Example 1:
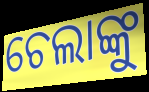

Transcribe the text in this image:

ଚେଲାଙ୍କୁ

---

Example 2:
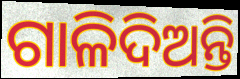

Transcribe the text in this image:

ଗାଳିଦିଅନ୍ତି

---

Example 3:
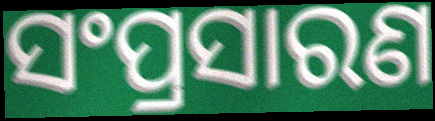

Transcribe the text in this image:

ସଂପ୍ରସାରଣ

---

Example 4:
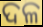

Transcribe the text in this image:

ଦଳ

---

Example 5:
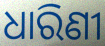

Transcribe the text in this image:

ଧାରିଣୀ